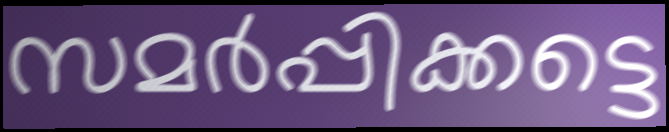
സമർപ്പിക്കട്ടെ